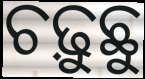
ଚଢ଼ୁଛୁ